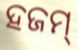
ହଜମ୍